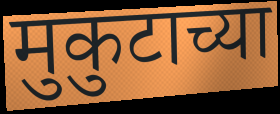
मुकुटाच्या